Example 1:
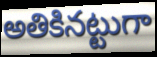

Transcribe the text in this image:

అతికినట్టుగా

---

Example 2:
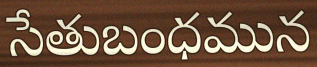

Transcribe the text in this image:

సేతుబంధమున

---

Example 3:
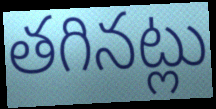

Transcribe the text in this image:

తగినట్లు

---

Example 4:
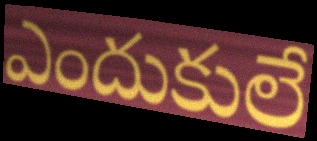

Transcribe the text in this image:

ఎందుకులే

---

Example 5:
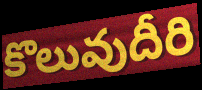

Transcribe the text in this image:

కొలువుదీరి